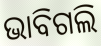
ଭାବିଗଲି